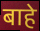
बाहे